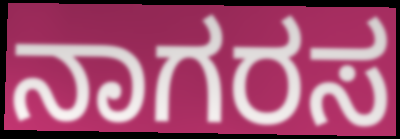
ನಾಗರಸ